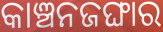
କାଞ୍ଚନଜଙ୍ଘାର